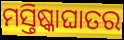
ମସ୍ତିଷ୍କାଘାତର